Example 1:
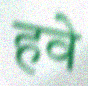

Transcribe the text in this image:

हवे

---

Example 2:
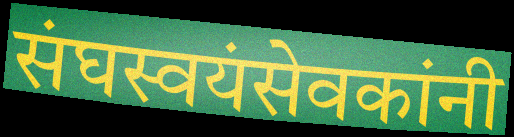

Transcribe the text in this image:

संघस्वयंसेवकांनी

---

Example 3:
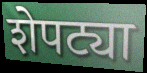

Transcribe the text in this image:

शेपट्या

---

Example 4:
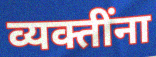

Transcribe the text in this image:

व्यक्तींना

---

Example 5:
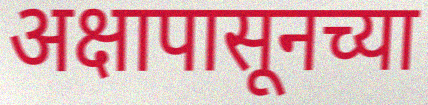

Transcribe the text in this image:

अक्षापासूनच्या